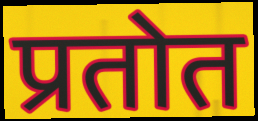
प्रतोत